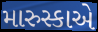
મારુસ્કાએ